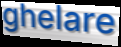
ghelare